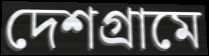
দেশগ্রামে